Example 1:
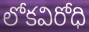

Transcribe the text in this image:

లోకవిరోధి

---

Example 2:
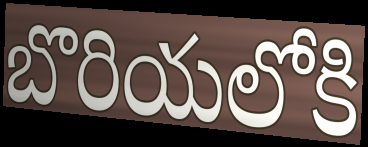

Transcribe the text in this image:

బొరియలోకి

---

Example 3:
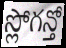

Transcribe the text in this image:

స్లోగన్తో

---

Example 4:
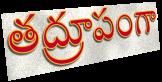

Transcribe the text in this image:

తద్రూపంగా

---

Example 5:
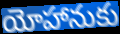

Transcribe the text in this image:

యోహానుకు